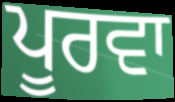
ਪੂਰਵਾ